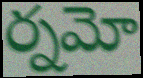
ర్నమో